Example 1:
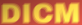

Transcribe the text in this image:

DICM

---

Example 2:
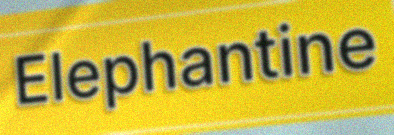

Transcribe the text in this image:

Elephantine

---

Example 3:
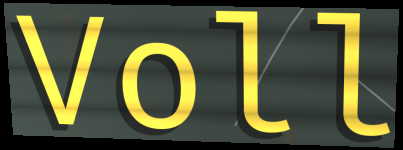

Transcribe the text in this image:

Voll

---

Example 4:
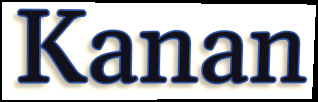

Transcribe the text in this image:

Kanan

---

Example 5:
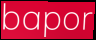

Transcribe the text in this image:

bapor